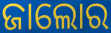
ଜାଲୋର